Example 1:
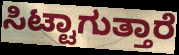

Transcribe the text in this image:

ಸಿಟ್ಟಾಗುತ್ತಾರೆ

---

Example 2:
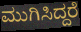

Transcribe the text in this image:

ಮುಗಿಸಿದ್ದರೆ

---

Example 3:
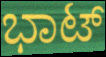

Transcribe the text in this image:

ಭಾಟ್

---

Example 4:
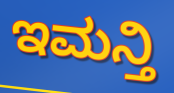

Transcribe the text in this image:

ಇಮನ್ತಿ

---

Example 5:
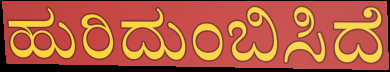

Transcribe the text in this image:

ಹುರಿದುಂಬಿಸಿದೆ